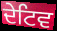
ਦੇਟਿਵ